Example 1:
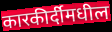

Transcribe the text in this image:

कारकीर्दीमधील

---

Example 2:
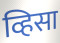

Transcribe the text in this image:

व्हिसा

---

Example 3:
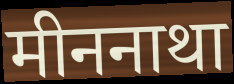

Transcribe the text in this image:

मीननाथा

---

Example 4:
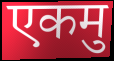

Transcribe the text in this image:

एकमु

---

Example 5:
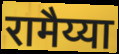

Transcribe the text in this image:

रामैय्या